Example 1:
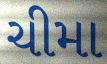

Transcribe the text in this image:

ચીમા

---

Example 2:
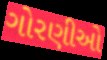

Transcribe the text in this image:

ગોરણીઓ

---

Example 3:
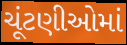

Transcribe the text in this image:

ચૂંટણીઓમાં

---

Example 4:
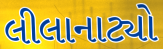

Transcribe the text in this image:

લીલાનાટ્યો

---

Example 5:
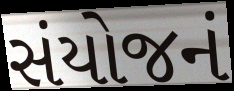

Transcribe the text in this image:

સંયોજનં